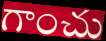
గాంచు